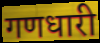
गणधारी